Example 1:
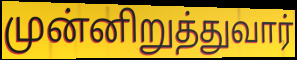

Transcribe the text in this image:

முன்னிறுத்துவார்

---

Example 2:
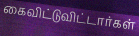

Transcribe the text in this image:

கைவிட்டுவிட்டார்கள்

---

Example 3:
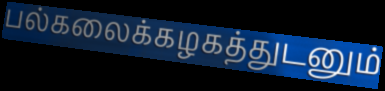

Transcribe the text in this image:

பல்கலைக்கழகத்துடனும்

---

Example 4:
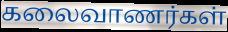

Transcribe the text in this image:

கலைவாணர்கள்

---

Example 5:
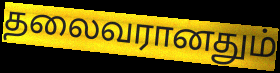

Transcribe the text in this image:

தலைவரானதும்